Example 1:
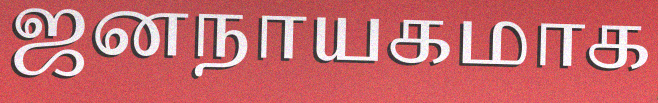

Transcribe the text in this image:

ஜனநாயகமாக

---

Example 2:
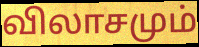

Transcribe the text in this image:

விலாசமும்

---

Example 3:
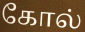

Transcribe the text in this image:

கோல்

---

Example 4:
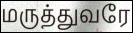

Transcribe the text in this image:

மருத்துவரே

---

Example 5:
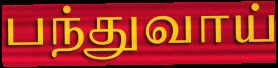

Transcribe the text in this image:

பந்துவாய்